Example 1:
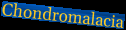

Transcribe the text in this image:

Chondromalacia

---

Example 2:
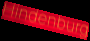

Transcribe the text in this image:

Hindenburg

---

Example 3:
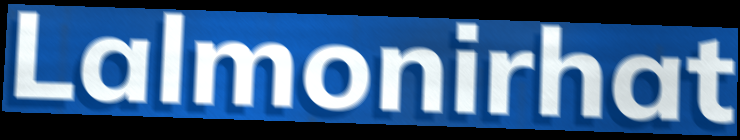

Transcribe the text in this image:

Lalmonirhat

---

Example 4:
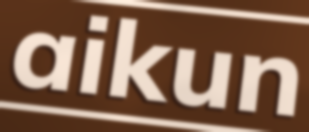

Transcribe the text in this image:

aikun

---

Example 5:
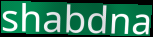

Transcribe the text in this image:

shabdna